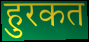
हुरकत